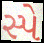
સ્પે